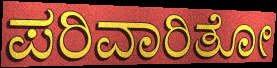
ಪರಿವಾರಿತೋ